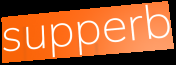
supperb